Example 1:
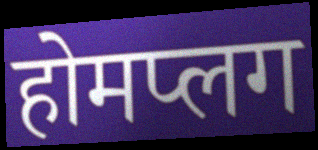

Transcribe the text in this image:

होमप्लग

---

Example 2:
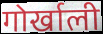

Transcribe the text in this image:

गोर्खाली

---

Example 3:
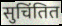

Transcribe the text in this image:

सुचिंतित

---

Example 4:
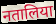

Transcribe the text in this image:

नतालिया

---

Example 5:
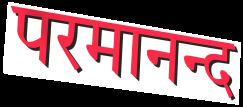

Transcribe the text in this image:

परमानन्द